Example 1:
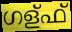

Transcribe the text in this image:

ഗള്ഫ്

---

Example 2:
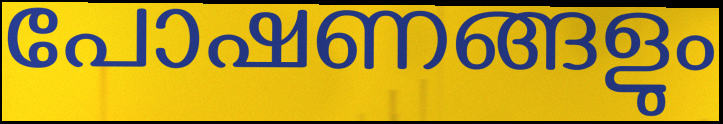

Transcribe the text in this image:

പോഷണങ്ങളും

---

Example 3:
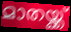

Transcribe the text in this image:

മാതയ്ക്ക്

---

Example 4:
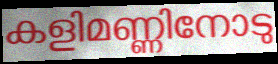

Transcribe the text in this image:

കളിമണ്ണിനോടു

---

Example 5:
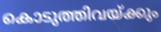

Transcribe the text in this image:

കൊടുത്തിവയ്ക്കും